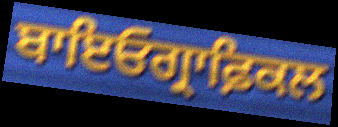
ਬਾਇਓਗ੍ਰਾਫ਼ਿਕਲ